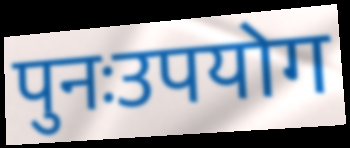
पुनःउपयोग